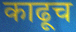
काढूच